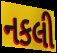
નકલી